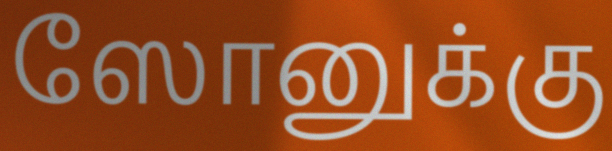
ஸோனுக்கு